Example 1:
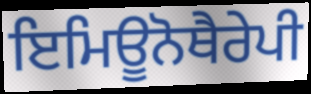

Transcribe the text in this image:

ਇਮਿਊਨੋਥੈਰੇਪੀ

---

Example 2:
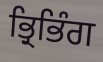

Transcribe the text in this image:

ਭ੍ਰਿਭਿੰਗ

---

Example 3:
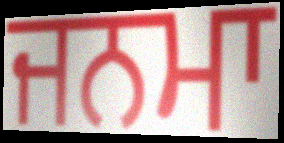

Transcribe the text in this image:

ਜਨਮਾ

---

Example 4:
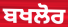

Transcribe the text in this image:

ਬਖਲੋਰ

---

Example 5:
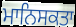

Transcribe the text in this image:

ਮਾਨਿਸਕਤਾ